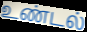
உண்டல்